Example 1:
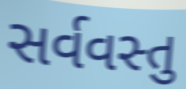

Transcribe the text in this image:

સર્વવસ્તુ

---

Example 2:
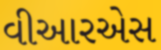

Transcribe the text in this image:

વીઆરએસ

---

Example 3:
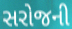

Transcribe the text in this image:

સરોજની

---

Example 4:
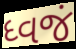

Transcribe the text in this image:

ધ્વજં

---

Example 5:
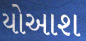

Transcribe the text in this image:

યોઆશ